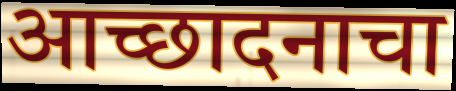
आच्छादनाचा